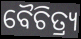
ବୈଚିତ୍ର୍ୟ